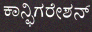
ಕಾನ್ಫಿಗರೇಶನ್